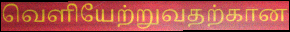
வெளியேற்றுவதற்கான